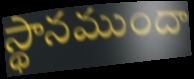
స్థానముందా